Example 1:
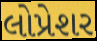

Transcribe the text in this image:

લોપ્રેશર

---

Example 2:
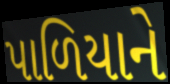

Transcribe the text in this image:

પાળિયાને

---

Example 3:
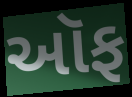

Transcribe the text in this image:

ઑફ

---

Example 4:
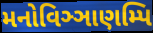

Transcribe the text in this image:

મનોવિઞ્ઞાણમ્પિ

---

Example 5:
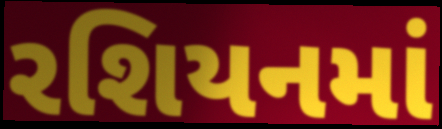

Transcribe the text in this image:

રશિયનમાં